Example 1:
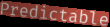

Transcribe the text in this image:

Predictable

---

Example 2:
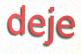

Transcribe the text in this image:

deje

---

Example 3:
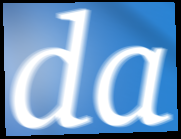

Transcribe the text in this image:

da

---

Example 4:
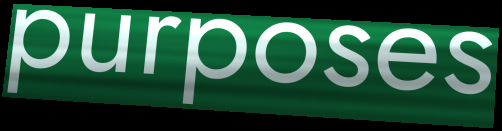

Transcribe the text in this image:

purposes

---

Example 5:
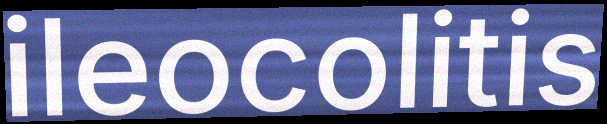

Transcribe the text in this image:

ileocolitis